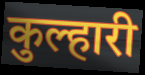
कुल्हारी